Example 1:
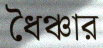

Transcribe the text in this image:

ধৈঞ্চার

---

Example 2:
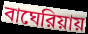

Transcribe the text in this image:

বাঘেরিয়ায়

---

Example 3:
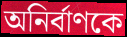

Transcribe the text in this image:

অনির্বাণকে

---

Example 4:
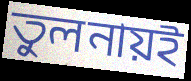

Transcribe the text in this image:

তুলনায়ই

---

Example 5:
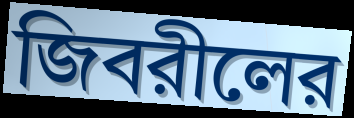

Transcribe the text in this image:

জিবরীলের